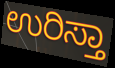
ಉರಿಸ್ತಾ